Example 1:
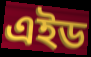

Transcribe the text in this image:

এইড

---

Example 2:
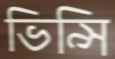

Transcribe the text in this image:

ভিন্সি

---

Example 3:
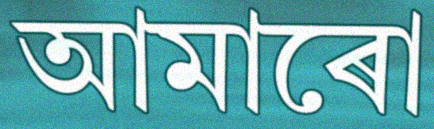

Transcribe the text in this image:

আমাৰো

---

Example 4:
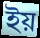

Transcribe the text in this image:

ইয়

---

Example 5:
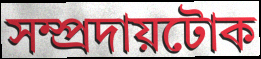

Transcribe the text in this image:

সম্প্ৰদায়টোক